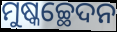
ମୁଷ୍କଚ୍ଛେଦନ